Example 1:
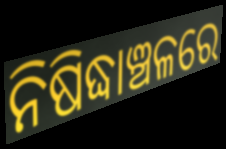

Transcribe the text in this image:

ନିଷିଦ୍ଧାଞ୍ଚଳରେ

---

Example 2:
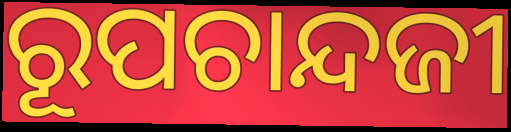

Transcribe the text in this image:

ରୂପଚାନ୍ଦଜୀ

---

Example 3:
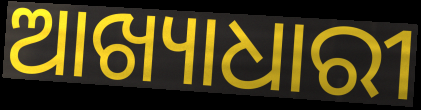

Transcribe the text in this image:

ଆଖ୍ୟାଧାରୀ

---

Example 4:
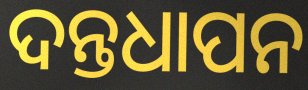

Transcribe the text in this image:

ଦନ୍ତଧାପନ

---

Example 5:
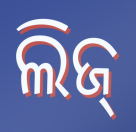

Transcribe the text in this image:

ଲିଜ୍